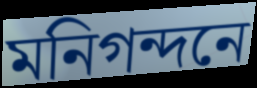
মনিগন্দনে